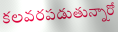
కలవరపడుతున్నారో